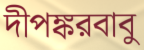
দীপঙ্করবাবু